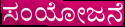
ಸಂಯೋಜನೆ